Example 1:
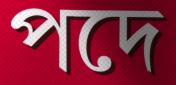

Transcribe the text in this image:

পদে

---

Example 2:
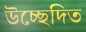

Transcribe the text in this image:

উচ্ছেদিত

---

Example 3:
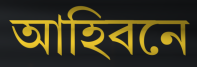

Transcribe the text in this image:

আহিবনে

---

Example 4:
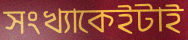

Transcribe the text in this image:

সংখ্যাকেইটাই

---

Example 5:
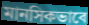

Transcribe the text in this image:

মানসিকভাবে